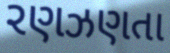
રણઝણતા